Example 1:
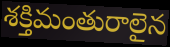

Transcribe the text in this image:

శక్తిమంతురాలైన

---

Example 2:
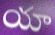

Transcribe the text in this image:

యా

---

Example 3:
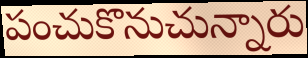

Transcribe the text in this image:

పంచుకొనుచున్నారు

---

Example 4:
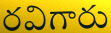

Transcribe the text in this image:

రవిగారు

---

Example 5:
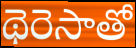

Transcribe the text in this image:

థెరెసాతో